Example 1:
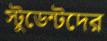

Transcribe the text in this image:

স্টুডেন্টদের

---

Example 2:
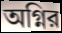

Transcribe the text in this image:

অগ্নির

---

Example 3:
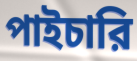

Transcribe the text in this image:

পাইচারি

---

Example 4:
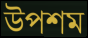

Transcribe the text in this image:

উপশম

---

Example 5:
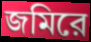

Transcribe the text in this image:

জমিরে